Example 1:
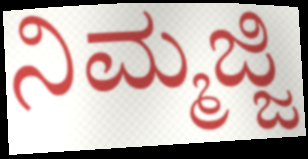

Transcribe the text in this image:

ನಿಮ್ಮಜ್ಜಿ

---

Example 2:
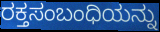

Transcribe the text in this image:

ರಕ್ತಸಂಬಂಧಿಯನ್ನು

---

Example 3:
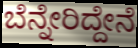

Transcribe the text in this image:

ಬೆನ್ನೇರಿದ್ದೇನೆ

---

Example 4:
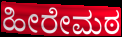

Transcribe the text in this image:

ಹೀರೇಮಠ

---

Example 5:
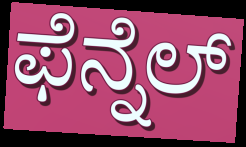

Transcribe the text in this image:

ಫೆನ್ನೆಲ್